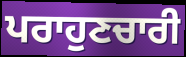
ਪਰਾਹੁਣਚਾਰੀ